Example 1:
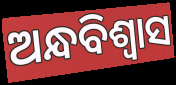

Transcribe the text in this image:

ଅନ୍ଧବିଶ୍ଵାସ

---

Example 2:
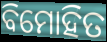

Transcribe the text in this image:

ବିମୋହିତ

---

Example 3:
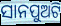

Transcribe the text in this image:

ସାନପୁଅଟି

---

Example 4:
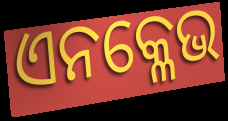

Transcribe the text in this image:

ଏନକ୍ଳେଭ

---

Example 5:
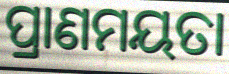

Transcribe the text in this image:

ପ୍ରାଣମୟତା